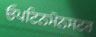
ਓਪਟਿਨਮੋਨਸਟਰ